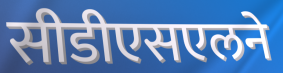
सीडीएसएलने